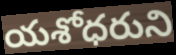
యశోధరుని